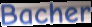
Bacher